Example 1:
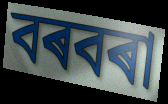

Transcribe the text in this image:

বৰবৰা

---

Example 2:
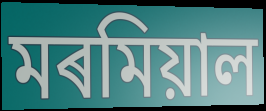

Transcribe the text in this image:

মৰমিয়াল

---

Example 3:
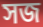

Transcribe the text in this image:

সজ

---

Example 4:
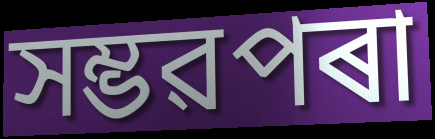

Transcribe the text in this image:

সম্ভৱপৰা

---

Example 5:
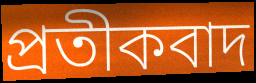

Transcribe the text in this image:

প্ৰতীকবাদ